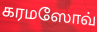
கரமஸோவ்